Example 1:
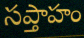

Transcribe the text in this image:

సప్తాహం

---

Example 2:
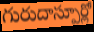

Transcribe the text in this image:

గురుదాస్పూర్లో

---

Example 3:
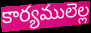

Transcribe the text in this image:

కార్యములెల్ల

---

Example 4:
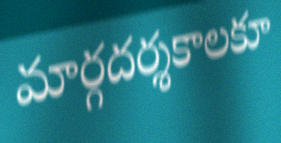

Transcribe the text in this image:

మార్గదర్శకాలకూ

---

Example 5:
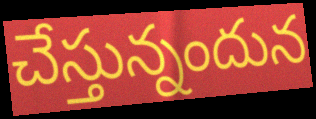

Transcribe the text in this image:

చేస్తున్నందున